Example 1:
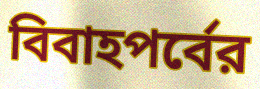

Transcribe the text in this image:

বিবাহপর্বের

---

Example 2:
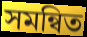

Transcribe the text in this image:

সমন্বিত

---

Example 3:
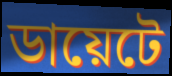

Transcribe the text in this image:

ডায়েটে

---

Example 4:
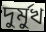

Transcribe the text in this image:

দুর্মুখ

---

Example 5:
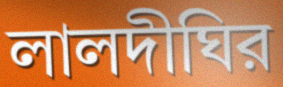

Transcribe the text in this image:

লালদীঘির